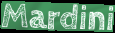
Mardini